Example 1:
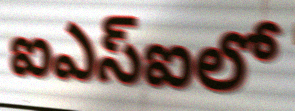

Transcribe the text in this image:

ఐఎస్ఐలో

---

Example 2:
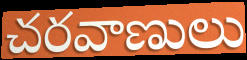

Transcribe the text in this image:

చరవాణులు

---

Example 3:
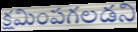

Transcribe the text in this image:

క్షమింపగలడని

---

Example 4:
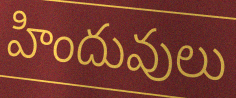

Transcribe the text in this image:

హిందువులు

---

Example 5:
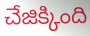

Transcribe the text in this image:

చేజిక్కింది